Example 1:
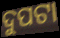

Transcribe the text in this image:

ଦୁପଟା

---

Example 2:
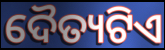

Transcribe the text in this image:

ଦୈତ୍ୟଟିଏ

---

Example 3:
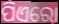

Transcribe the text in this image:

ପିଏରୋ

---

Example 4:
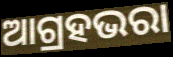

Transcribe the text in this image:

ଆଗ୍ରହଭରା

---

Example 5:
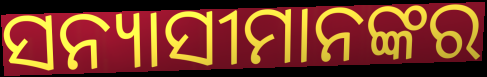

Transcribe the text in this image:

ସନ୍ୟାସୀମାନଙ୍କର